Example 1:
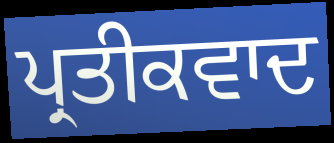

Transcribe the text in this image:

ਪ੍ਰਤੀਕਵਾਦ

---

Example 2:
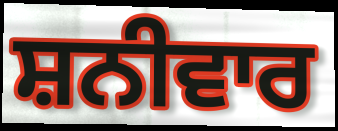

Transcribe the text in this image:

ਸ਼ਨੀਵਾਰ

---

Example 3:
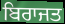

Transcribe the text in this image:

ਬਿਰਾਜਤ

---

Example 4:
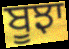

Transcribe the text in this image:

ਬੂਝਾ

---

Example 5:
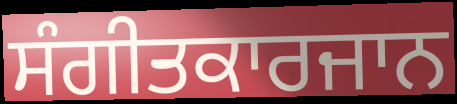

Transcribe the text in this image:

ਸੰਗੀਤਕਾਰਜਾਨ